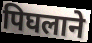
पिघलाने